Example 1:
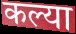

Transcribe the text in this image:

कल्या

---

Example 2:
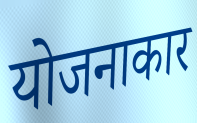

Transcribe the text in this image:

योजनाकार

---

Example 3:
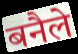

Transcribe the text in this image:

बनैले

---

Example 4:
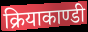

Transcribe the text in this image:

क्रियाकाण्डी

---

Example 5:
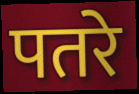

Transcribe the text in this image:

पतरे